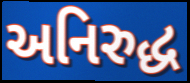
અનિરુદ્ધ